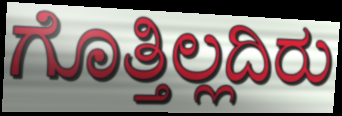
ಗೊತ್ತಿಲ್ಲದಿರು